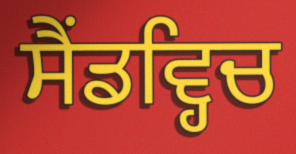
ਸੈਂਡਵ੍ਹਿਚ